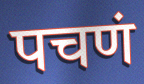
पचणं